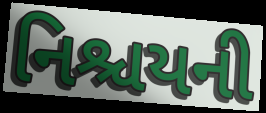
નિશ્ચયની